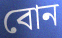
বোন